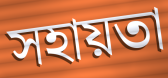
সহায়তা